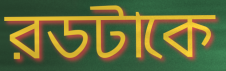
রডটাকে